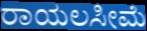
ರಾಯಲಸೀಮೆ